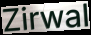
Zirwal